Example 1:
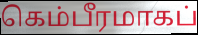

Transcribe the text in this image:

கெம்பீரமாகப்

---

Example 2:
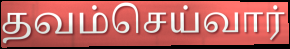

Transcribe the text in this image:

தவம்செய்வார்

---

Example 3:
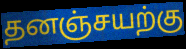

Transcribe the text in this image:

தனஞ்சயற்கு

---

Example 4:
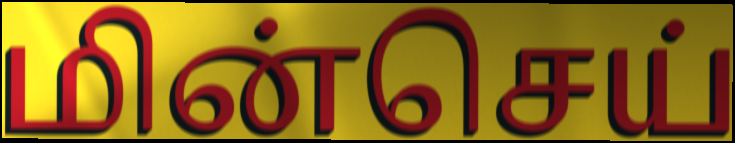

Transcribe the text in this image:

மின்செய்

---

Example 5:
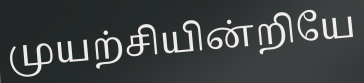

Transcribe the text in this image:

முயற்சியின்றியே